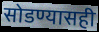
सोडण्यासही